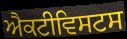
ਐਕਟੀਵਿਸਟਸ